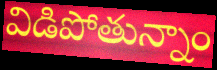
విడిపోతున్నాం